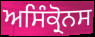
ਅਸਿੰਕ੍ਰੋਨਸ